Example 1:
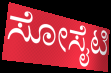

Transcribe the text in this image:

ಸೋಸೈಟಿ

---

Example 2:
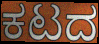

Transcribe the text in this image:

ಕಟದ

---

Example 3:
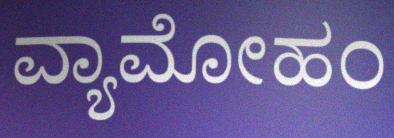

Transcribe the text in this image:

ವ್ಯಾಮೋಹಂ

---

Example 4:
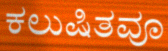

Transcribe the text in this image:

ಕಲುಷಿತವೂ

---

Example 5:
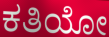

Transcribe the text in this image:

ಕತಿಯೋ